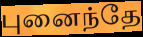
புனைந்தே